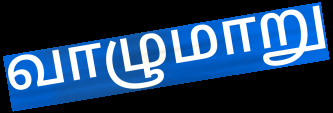
வாழுமாறு